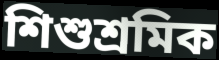
শিশুশ্রমিক